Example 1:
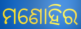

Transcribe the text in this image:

ମଣୋହିର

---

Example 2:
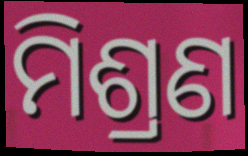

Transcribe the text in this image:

ମିଶ୍ରଣ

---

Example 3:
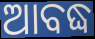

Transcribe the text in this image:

ଆବଦ୍ଧ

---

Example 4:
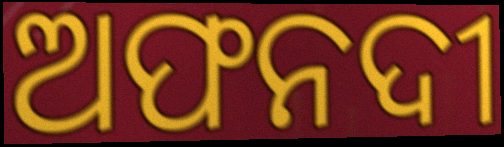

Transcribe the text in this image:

ଅଫନଦୀ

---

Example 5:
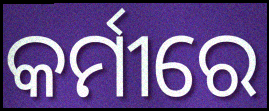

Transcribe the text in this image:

କର୍ମୀରେ